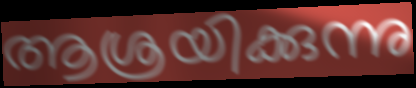
ആശ്രയിക്കുന്നു